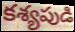
కశ్యపుడి